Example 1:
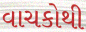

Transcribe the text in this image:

વાચકોથી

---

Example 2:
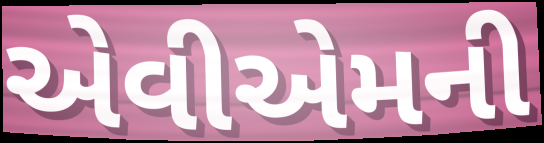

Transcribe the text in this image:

એવીએમની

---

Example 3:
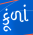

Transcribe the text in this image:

કૂંળાં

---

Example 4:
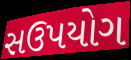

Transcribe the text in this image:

સઉપયોગ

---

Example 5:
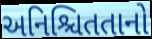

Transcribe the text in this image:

અનિશ્ચિતતાનો